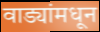
वाड्यांमधून